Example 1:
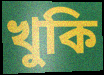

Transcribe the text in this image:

খুকি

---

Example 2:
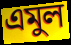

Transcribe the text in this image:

এমুল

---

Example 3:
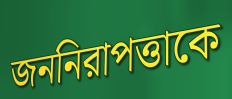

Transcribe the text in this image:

জননিরাপত্তাকে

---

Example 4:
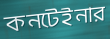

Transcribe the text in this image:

কনটেইনার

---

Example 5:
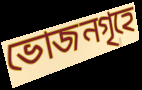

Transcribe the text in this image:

ভোজনগৃহে